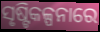
ସୃଷ୍ଟିକଳ୍ପନାରେ